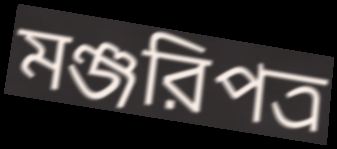
মঞ্জরিপত্র